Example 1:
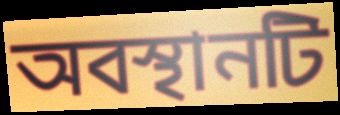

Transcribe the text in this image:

অবস্থানটি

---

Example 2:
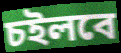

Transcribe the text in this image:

চইলবে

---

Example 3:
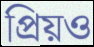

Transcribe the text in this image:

প্রিয়ও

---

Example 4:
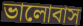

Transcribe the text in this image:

ভালোবাস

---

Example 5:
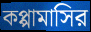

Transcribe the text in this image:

কপ্পামাসির